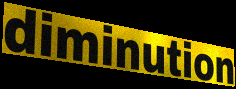
diminution